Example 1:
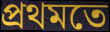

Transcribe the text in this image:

প্ৰথমতে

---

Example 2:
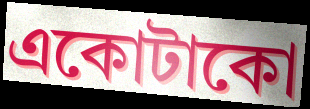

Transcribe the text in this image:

একোটাকো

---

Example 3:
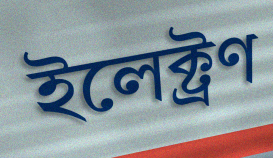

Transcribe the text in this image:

ইলেক্ট্ৰণ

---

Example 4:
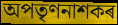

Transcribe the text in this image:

অপতৃণনাশকৰ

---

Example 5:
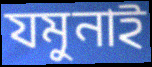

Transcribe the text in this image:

যমুনাই